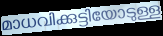
മാധവിക്കുട്ടിയോടുള്ള